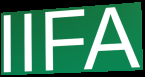
IIFA